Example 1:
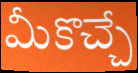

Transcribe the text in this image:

మీకొచ్చే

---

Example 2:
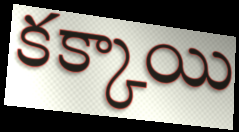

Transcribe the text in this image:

కక్కాయి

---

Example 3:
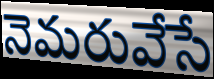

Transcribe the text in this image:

నెమరువేసే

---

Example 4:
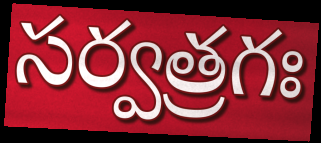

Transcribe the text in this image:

సర్వత్రగః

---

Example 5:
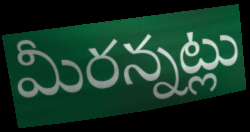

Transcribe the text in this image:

మీరన్నట్లు